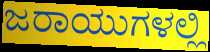
ಜರಾಯುಗಳಲ್ಲಿ